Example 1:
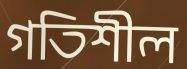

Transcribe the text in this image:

গতিশীল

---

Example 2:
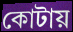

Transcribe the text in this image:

কোটায়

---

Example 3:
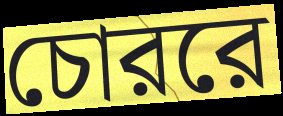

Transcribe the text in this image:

চোররে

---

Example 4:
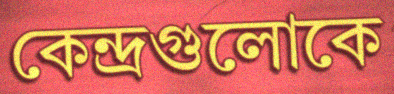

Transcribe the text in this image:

কেন্দ্রগুলোকে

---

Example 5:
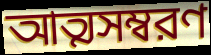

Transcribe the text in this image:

আত্মসম্বরণ